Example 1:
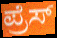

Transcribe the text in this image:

ಪ್ರೆಸ್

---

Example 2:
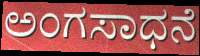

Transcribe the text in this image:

ಅಂಗಸಾಧನೆ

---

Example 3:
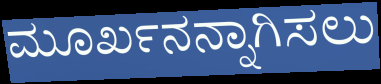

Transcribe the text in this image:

ಮೂರ್ಖನನ್ನಾಗಿಸಲು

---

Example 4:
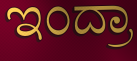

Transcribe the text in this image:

ಇಂದ್ರಾ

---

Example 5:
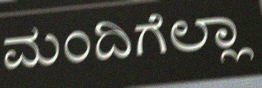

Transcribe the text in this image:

ಮಂದಿಗೆಲ್ಲಾ